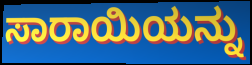
ಸಾರಾಯಿಯನ್ನು